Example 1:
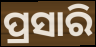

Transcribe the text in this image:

ପ୍ରସାରି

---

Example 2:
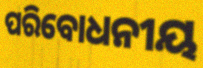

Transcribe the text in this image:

ପରିବୋଧନୀୟ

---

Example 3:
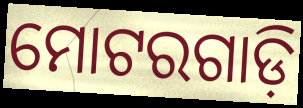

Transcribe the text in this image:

ମୋଟରଗାଡ଼ି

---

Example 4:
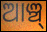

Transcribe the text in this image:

ଆଞ୍ଚ୍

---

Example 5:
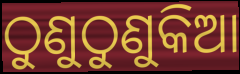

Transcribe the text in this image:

ଠୁଣୁଠୁଣୁକିଆ